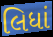
લિધાં